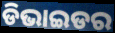
ଡିଭାଇଡର